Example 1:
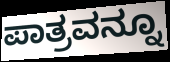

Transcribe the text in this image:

ಪಾತ್ರವನ್ನೂ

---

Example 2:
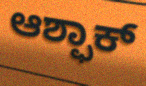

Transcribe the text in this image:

ಆಶ್ಫಾಕ್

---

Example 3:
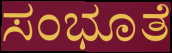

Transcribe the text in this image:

ಸಂಭೂತೆ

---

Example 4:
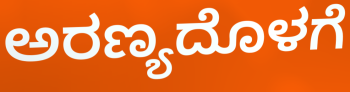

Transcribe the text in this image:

ಅರಣ್ಯದೊಳಗೆ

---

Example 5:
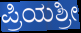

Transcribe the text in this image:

ಪ್ರಿಯಶ್ರೀ